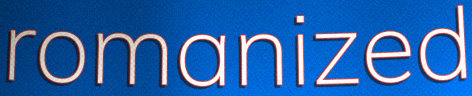
romanized